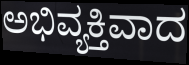
ಅಭಿವ್ಯಕ್ತಿವಾದ